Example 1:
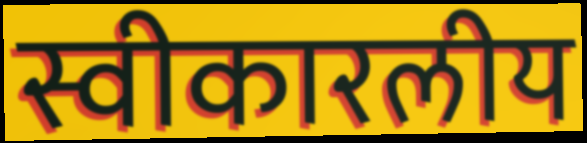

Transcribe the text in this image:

स्वीकारलीय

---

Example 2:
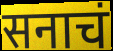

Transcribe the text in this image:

सनाचं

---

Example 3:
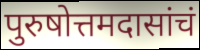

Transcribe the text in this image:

पुरुषोत्तमदासांचं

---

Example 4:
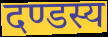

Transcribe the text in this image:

दण्डस्य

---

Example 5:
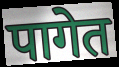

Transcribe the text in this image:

पागेत